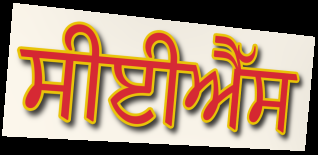
ਸੀਈਐੱਸ